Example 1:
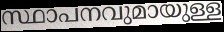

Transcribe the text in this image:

സ്ഥാപനവുമായുള്ള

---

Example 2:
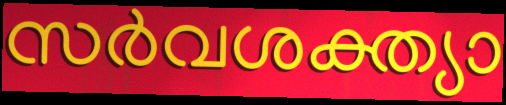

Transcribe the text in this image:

സർവശക്ത്യാ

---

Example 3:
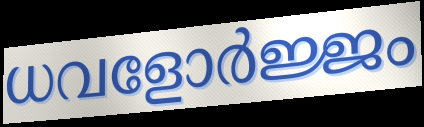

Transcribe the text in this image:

ധവളോർജ്ജം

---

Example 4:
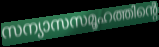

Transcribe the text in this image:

സന്യാസസമൂഹത്തിന്റെ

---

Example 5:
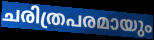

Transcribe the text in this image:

ചരിത്രപരമായും